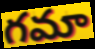
గమా